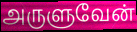
அருளுவேன்